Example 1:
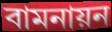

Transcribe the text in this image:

বামনায়ন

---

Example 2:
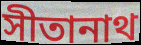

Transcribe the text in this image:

সীতানাথ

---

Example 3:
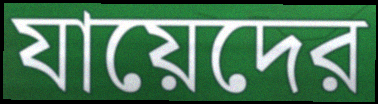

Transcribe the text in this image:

যায়েদের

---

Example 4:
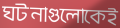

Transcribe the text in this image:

ঘটনাগুলোকেই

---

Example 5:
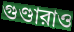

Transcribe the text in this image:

গুণ্ডারাও